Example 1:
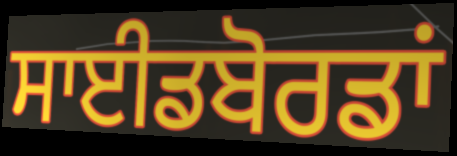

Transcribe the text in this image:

ਸਾਈਡਬੋਰਡਾਂ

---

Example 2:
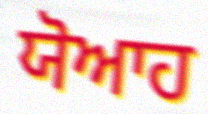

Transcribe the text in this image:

ਯੋਆਹ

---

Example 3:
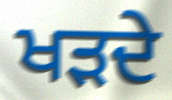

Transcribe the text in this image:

ਖੜਦੇ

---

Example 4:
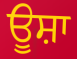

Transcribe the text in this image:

ਊਸ਼ਾ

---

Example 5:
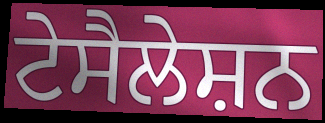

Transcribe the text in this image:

ਟੇਸੈਲੇਸ਼ਨ